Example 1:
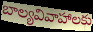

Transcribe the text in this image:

బాల్యవివాహాలకు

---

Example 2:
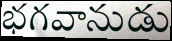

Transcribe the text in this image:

భగవానుడు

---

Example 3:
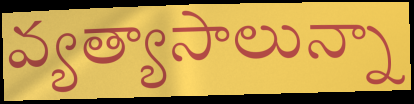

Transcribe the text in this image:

వ్యత్యాసాలున్నా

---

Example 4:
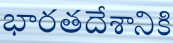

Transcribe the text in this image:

భారతదేశానికి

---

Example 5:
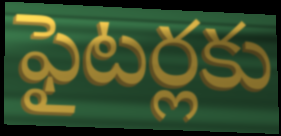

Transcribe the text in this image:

ఫైటర్లకు